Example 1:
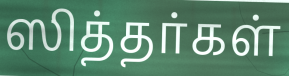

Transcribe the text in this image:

ஸித்தர்கள்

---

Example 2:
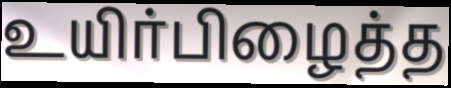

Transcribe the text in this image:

உயிர்பிழைத்த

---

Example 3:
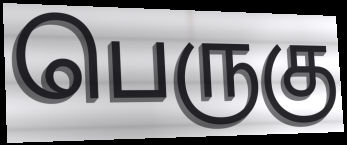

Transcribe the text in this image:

பெருகு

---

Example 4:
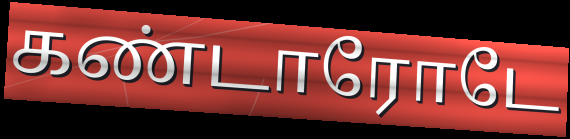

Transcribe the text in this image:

கண்டாரோடே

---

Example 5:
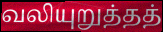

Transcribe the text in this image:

வலியுறுத்தத்